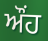
ਔਂਹ